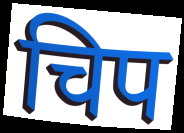
चिप